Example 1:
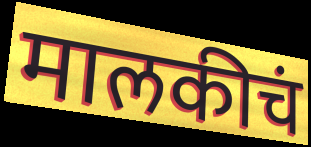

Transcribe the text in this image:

मालकीचं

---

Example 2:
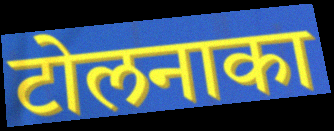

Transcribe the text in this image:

टोलनाका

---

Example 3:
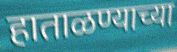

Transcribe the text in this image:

हाताळण्याच्या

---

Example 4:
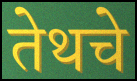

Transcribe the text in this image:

तेथचे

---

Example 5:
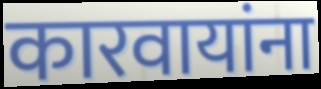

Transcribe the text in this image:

कारवायांना